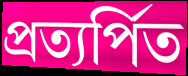
প্রত্যর্পিত